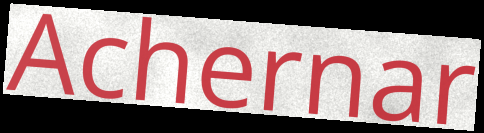
Achernar